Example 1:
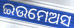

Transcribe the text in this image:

ଇଉମେଅସ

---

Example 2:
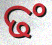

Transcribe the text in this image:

ଢଂ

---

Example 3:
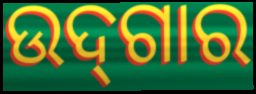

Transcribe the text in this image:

ଉଦ୍‌ଗାର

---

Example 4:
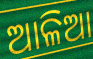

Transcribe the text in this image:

ଆଳିଆ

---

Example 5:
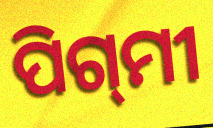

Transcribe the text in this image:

ପିଗ୍‌ମୀ